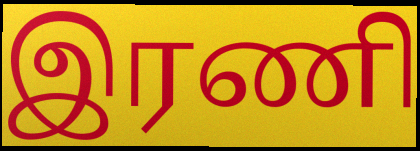
இரணி